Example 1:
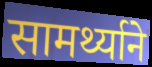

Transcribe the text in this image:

सामर्थ्याने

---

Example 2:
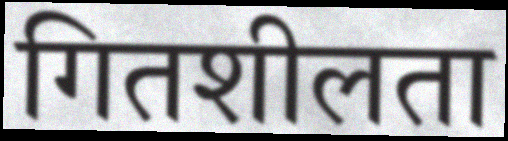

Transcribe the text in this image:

गितशीलता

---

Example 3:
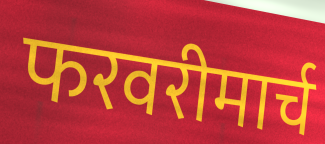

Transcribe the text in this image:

फरवरीमार्च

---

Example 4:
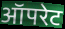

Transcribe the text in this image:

ऑपरेट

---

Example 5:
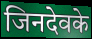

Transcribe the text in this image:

जिनदेवके